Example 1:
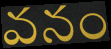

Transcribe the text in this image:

వనం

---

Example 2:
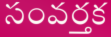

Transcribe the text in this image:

సంవర్తక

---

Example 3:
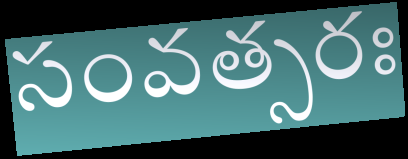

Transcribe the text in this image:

సంవత్సరః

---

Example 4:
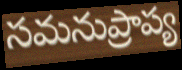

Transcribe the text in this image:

సమనుప్రాప్య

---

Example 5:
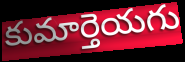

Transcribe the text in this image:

కుమార్తెయగు